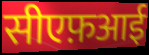
सीएफ़आई